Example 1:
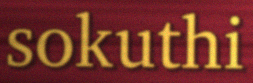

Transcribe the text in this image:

sokuthi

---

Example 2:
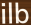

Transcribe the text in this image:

ilb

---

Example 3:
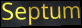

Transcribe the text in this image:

Septum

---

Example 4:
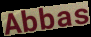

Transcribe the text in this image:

Abbas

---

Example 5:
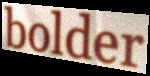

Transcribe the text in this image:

bolder